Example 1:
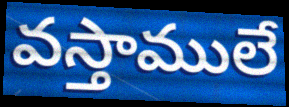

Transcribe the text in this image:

వస్తాములే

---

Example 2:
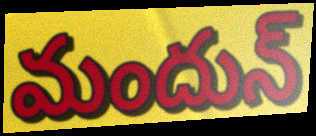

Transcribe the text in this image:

మందున్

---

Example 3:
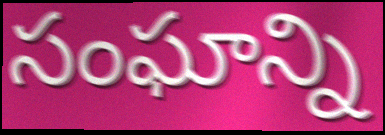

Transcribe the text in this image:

సంఘాన్ని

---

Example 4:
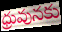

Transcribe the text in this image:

ధ్రువునకు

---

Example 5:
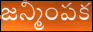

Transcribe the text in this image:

జన్మింపక